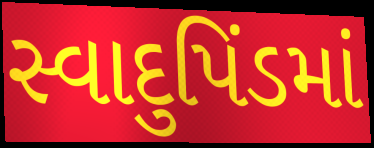
સ્વાદુપિંડમાં